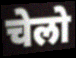
चेलो